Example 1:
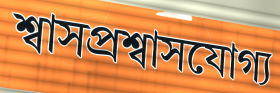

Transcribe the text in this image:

শ্বাসপ্রশ্বাসযোগ্য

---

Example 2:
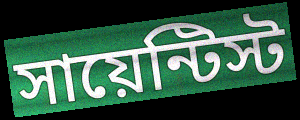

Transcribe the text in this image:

সায়েন্টিস্ট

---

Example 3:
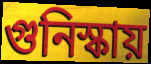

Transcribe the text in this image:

গুনিস্কায়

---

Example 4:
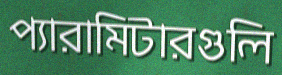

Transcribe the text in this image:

প্যারামিটারগুলি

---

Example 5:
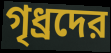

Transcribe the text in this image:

গৃধ্রদের